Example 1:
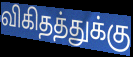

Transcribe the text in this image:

விகிதத்துக்கு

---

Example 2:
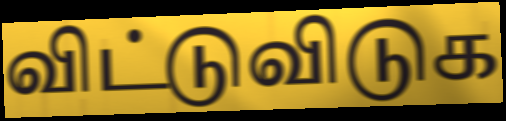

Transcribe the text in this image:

விட்டுவிடுக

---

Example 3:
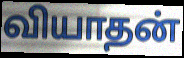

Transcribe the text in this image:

வியாதன்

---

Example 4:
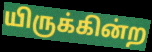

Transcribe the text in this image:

யிருக்கின்ற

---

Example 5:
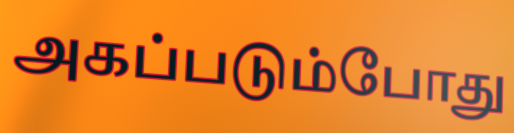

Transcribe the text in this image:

அகப்படும்போது